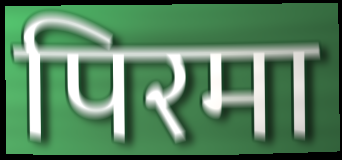
पिरमा